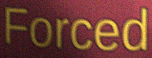
Forced